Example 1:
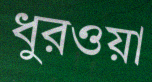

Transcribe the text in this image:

ধুরওয়া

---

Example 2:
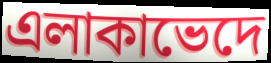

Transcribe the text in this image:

এলাকাভেদে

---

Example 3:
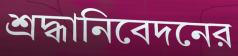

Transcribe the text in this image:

শ্রদ্ধানিবেদনের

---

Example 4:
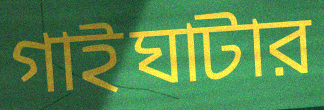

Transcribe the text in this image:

গাইঘাটার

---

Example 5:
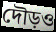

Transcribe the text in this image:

দৌড়ও